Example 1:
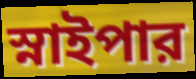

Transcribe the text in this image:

স্নাইপার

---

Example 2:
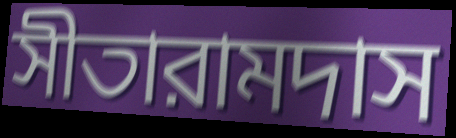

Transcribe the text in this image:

সীতারামদাস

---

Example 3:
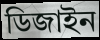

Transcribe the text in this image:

ডিজাইন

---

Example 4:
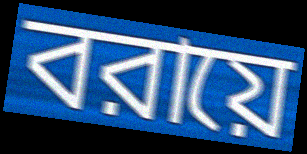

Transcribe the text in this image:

বরায়ে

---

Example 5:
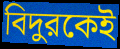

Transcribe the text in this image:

বিদুরকেই